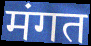
मंगत